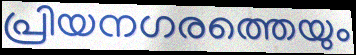
പ്രിയനഗരത്തെയും